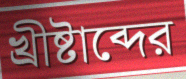
খ্রীষ্টাব্দের